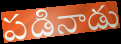
పడినాడు